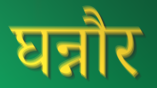
घन्नौर